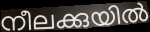
നീലക്കുയിൽ